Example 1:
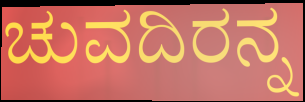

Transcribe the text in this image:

ಚುವದಿರನ್ನ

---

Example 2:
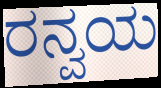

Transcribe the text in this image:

ರನ್ವಯ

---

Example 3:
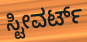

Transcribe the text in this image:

ಸ್ಟೀವರ್ಟ್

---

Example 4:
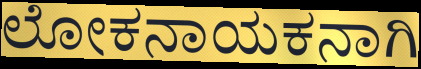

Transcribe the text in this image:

ಲೋಕನಾಯಕನಾಗಿ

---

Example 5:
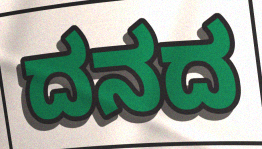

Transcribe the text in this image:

ದನದ